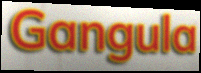
Gangula